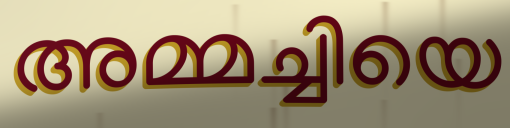
അമ്മച്ചിയെ